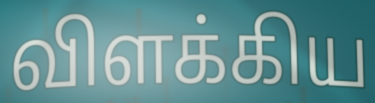
விளக்கிய